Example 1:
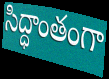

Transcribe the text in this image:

సిద్ధాంతంగా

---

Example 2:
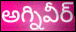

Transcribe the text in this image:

అగ్నివీర్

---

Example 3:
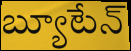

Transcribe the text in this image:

బ్యూటేన్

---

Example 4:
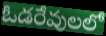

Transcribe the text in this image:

ఓడరేవులలో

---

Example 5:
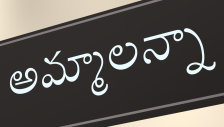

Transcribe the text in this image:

అమ్మాలన్నా